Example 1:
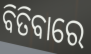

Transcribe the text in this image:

ବିତିବାରେ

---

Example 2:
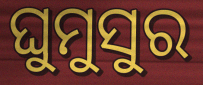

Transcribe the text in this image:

ଘୁମୁସୁର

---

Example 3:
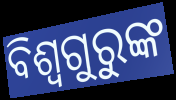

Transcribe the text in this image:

ବିଶ୍ୱଗୁରୁଙ୍କ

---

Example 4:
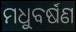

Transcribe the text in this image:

ମଧୁବର୍ଷଣ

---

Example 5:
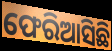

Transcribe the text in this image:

ଫେରିଆସିଛି